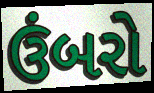
ઉંબરો